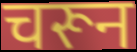
चरून